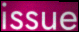
issue